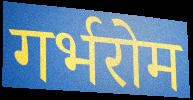
गर्भरोम